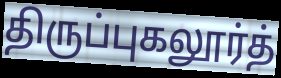
திருப்புகலூர்த்